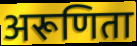
अरूणिता